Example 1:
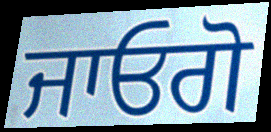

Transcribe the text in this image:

ਜਾਓਗੋ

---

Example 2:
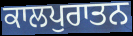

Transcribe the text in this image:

ਕਾਲਪੁਰਾਤਨ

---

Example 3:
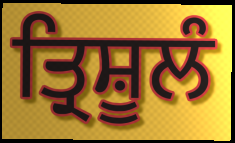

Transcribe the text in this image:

ਤ੍ਰਿਸ਼ੂਲੰ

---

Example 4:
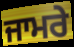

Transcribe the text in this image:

ਜਾਮਰੇ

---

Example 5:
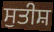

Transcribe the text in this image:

ਸੁਤੀਸ਼